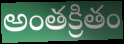
అంతక్రితం